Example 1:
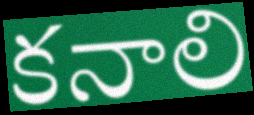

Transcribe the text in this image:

కనాలి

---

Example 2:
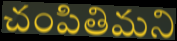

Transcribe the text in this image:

చంపితిమని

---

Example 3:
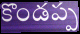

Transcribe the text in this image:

కొండప్ప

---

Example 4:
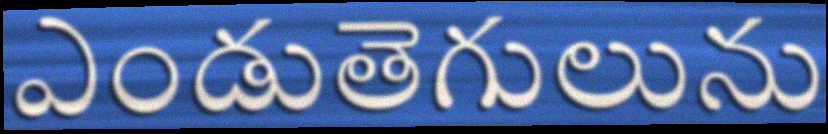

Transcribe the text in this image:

ఎండుతెగులును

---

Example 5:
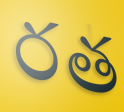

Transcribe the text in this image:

రత